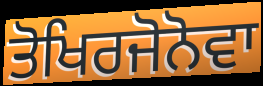
ਤੋਖਿਰਜੋਨੋਵਾ